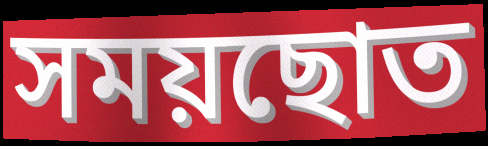
সময়ছোত